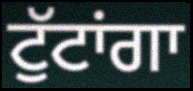
ਟੁੱਟਾਂਗਾ